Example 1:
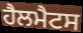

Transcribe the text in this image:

ਹੈਲਮੈਟਸ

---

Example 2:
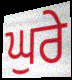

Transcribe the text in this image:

ਘੁਰੇ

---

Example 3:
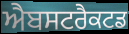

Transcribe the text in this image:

ਐਬਸਟਰੈਕਟਡ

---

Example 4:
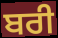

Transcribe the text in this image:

ਬਰੀ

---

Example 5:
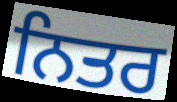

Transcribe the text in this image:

ਨਿਤਰ